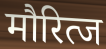
मौरित्ज